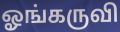
ஓங்கருவி